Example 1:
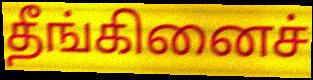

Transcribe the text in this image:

தீங்கினைச்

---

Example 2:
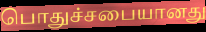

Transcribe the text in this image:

பொதுச்சபையானது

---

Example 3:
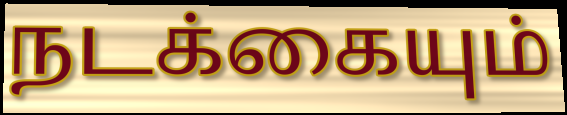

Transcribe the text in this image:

நடக்கையும்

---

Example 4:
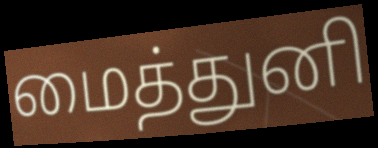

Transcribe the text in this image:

மைத்துனி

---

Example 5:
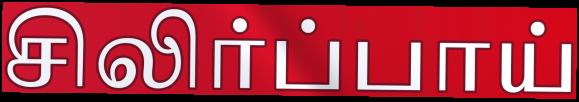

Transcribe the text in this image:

சிலிர்ப்பாய்